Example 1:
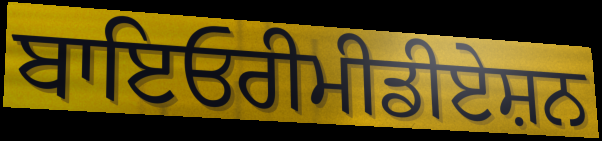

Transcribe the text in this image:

ਬਾਇਓਰੀਮੀਡੀਏਸ਼ਨ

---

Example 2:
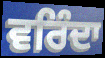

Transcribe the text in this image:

ਵਰਿੰਦਾ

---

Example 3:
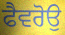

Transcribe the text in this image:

ਫੈਵਰੋਉ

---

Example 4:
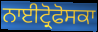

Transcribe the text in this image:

ਨਾਈਟ੍ਰੋਫੋਸਕਾ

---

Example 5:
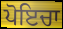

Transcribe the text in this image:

ਪੋਇਚਾ